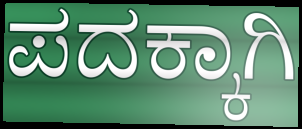
ಪದಕ್ಕಾಗಿ